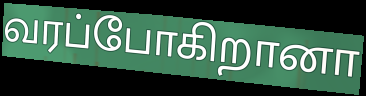
வரப்போகிறானா